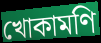
খোকামণি